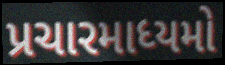
પ્રચારમાધ્યમો